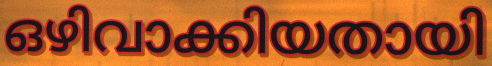
ഒഴിവാക്കിയതായി